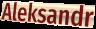
Aleksandr